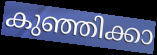
കുഞ്ഞിക്കാ